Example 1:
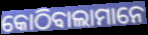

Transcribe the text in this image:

କୋଠିବାଲାମାନେ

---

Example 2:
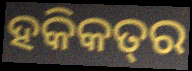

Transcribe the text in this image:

ହକିକତ୍‌ର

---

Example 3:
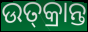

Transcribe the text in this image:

ଉତ୍‌କ୍ରାନ୍ତ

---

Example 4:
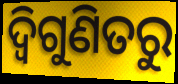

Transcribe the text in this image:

ଦ୍ୱିଗୁଣିତରୁ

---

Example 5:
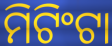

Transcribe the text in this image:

ମିଟିଂଟା